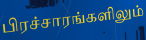
பிரச்சாரங்களிலும்